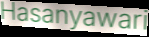
Hasanyawari